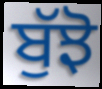
ਬੁੱਝੋ